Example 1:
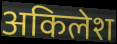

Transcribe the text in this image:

अकिलेश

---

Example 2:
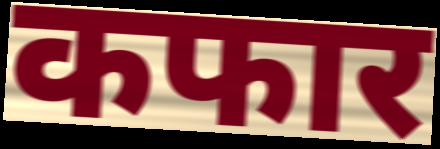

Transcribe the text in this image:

कफार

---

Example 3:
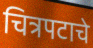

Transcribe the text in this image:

चित्रपटाचे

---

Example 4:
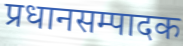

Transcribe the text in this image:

प्रधानसम्पादक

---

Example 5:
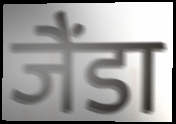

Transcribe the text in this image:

जैंडा